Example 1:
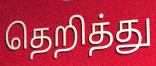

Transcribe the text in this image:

தெறித்து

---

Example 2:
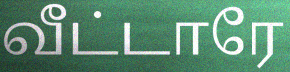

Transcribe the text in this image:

வீட்டாரே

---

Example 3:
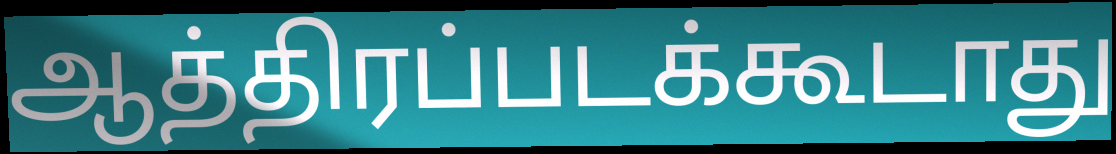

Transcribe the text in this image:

ஆத்திரப்படக்கூடாது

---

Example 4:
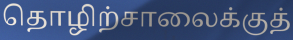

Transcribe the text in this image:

தொழிற்சாலைக்குத்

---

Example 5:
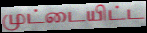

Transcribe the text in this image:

முட்டையிட்ட